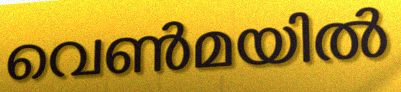
വെൺമയിൽ